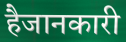
हैजानकारी